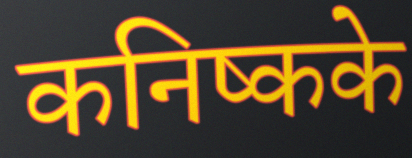
कनिष्कके